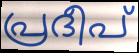
പ്രദീപ്